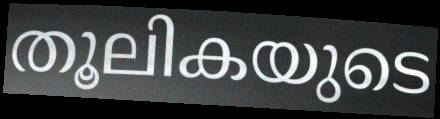
തൂലികയുടെ